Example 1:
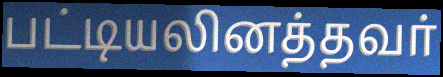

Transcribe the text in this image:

பட்டியலினத்தவர்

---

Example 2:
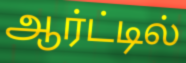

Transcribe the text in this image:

ஆர்ட்டில்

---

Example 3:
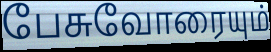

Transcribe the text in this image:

பேசுவோரையும்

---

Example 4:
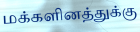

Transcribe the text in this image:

மக்களினத்துக்கு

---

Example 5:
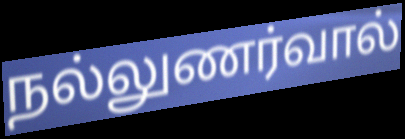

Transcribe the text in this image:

நல்லுணர்வால்